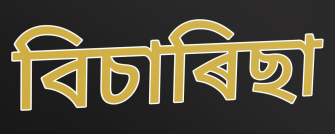
বিচাৰিছা